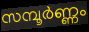
സമ്പൂർണ്ണം